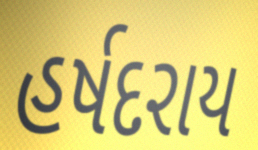
હર્ષદરાય